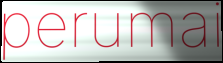
perumai